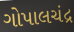
ગોપાલચંદ્ર